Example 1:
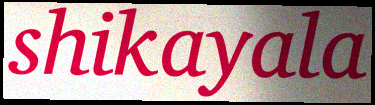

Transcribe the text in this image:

shikayala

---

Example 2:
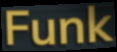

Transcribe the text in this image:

Funk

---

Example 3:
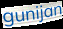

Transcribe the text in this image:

gunijan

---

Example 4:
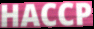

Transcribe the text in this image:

HACCP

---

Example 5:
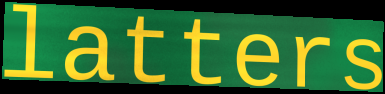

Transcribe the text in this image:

latters